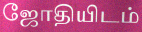
ஜோதியிடம்